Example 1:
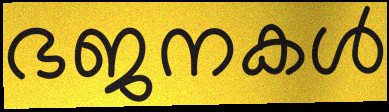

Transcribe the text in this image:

ഭജനകൾ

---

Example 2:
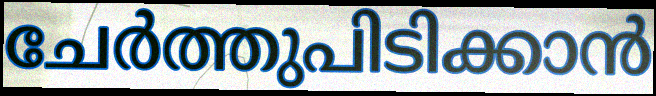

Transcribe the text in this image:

ചേർത്തുപിടിക്കാൻ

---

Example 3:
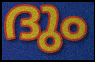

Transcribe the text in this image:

ദും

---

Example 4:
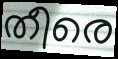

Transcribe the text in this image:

തീരെ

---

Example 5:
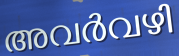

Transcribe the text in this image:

അവർവഴി